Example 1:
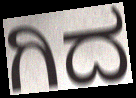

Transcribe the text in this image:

ಗಿದ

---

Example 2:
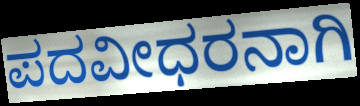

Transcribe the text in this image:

ಪದವೀಧರನಾಗಿ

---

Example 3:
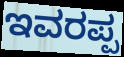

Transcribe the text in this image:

ಇವರಪ್ಪ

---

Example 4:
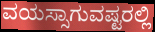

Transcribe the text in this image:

ವಯಸ್ಸಾಗುವಷ್ಟರಲ್ಲಿ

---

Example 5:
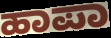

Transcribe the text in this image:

ಹಾಪಾ